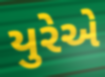
યુરેએ